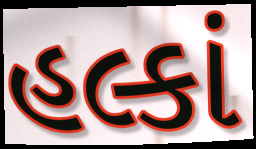
હલ્કાં